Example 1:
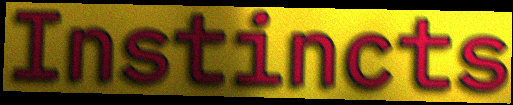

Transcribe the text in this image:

Instincts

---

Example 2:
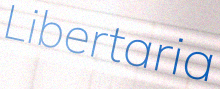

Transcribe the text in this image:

Libertaria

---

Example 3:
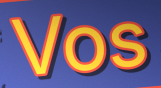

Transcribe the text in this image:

Vos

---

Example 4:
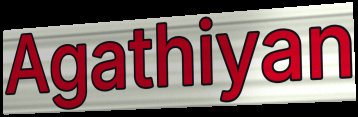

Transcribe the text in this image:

Agathiyan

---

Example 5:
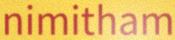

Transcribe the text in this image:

nimitham